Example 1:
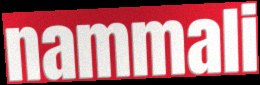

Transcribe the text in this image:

nammali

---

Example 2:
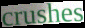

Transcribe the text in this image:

crushes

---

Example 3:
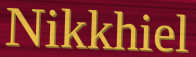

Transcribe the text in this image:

Nikkhiel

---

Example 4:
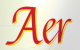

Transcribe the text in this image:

Aer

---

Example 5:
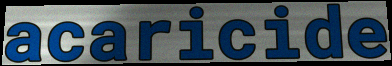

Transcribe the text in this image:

acaricide